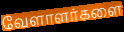
வேளாளர்களை